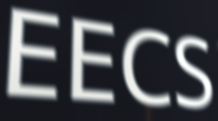
EECS